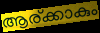
ആര്ക്കാകും